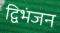
द्विभंजन